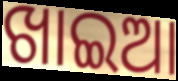
ଖାଇଆ